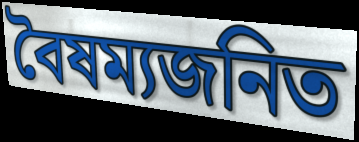
বৈষম্যজনিত